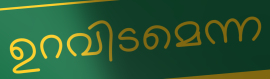
ഉറവിടമെന്ന